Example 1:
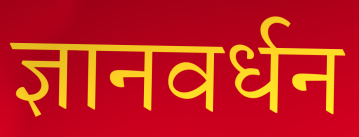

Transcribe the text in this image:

ज्ञानवर्धन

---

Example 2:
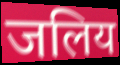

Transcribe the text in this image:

जलिय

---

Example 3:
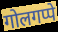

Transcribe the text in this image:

गोलगप्पे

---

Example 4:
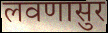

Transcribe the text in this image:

लवणासुर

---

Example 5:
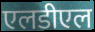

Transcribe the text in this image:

एलडीएल